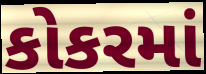
કોકરમાં